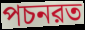
পচনরত